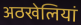
अठखेलियां